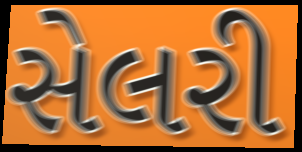
સેલરી